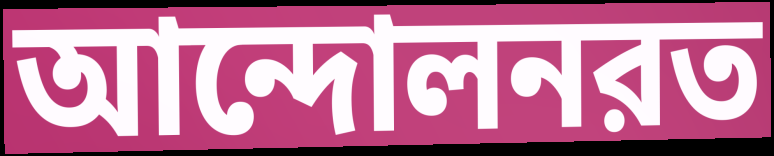
আন্দোলনরত